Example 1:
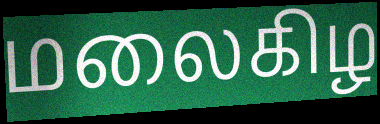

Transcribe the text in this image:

மலைகிழ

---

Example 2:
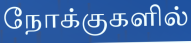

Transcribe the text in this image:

நோக்குகளில்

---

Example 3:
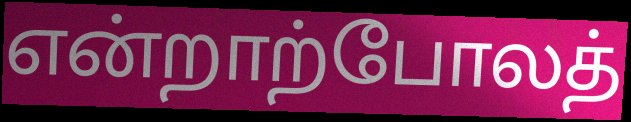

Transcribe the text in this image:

என்றாற்போலத்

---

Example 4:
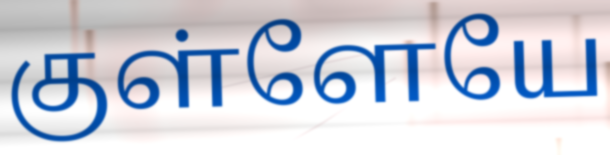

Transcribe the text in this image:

குள்ளேயே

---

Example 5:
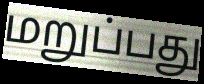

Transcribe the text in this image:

மறுப்பது